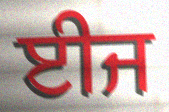
ਈਜ